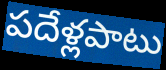
పదేళ్లపాటు